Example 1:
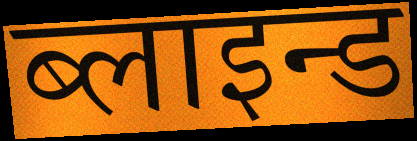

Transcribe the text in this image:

ब्लाइन्ड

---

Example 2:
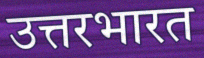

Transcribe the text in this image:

उत्तरभारत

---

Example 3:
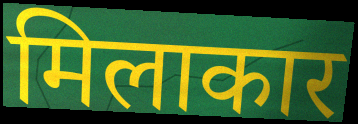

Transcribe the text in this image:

मिलाकार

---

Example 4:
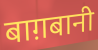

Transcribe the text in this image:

बाग़बानी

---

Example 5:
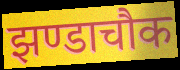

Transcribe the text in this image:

झण्डाचौक